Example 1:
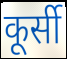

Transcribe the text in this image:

कूर्सी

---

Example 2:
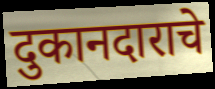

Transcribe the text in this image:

दुकानदाराचे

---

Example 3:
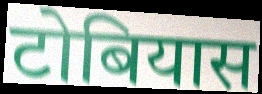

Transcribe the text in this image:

टोबियास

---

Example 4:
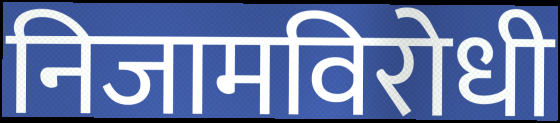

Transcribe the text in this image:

निजामविरोधी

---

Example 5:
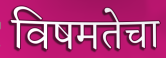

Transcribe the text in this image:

विषमतेचा